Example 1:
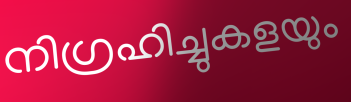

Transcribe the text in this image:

നിഗ്രഹിച്ചുകളയും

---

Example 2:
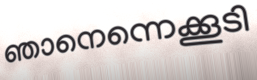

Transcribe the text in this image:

ഞാനെന്നെക്കൂടി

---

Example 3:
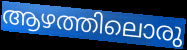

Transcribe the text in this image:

ആഴത്തിലൊരു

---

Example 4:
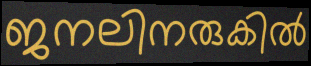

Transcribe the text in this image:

ജനലിനരുകിൽ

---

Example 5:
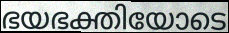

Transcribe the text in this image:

ഭയഭക്തിയോടെ